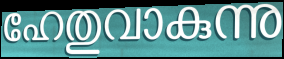
ഹേതുവാകുന്നു